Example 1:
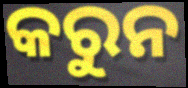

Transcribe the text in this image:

କରୁନ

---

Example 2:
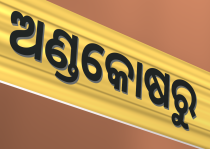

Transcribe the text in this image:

ଅଣ୍ଡକୋଷରୁ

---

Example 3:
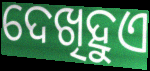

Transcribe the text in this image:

ଦେଖିହୁଏ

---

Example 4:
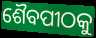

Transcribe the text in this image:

ଶୈବପୀଠକୁ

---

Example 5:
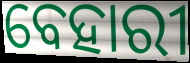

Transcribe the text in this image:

ବେହାରୀ